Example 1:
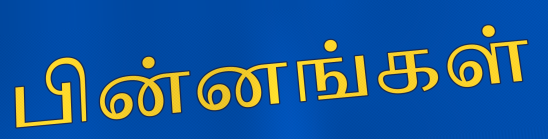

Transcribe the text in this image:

பின்னங்கள்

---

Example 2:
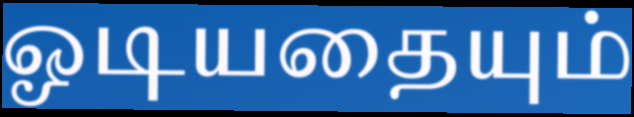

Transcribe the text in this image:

ஓடியதையும்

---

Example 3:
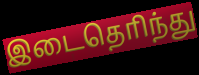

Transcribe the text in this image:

இடைதெரிந்து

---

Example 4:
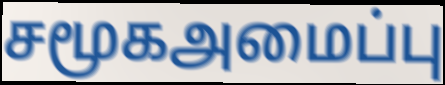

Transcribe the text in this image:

சமூகஅமைப்பு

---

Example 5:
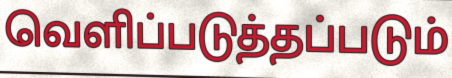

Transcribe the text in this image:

வெளிப்படுத்தப்படும்